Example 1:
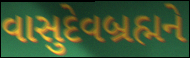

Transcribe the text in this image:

વાસુદેવબ્રહ્મને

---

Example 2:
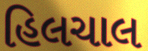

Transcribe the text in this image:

હિલચાલ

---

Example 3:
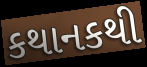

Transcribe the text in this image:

કથાનકથી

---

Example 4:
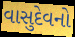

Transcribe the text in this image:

વાસુદેવનો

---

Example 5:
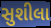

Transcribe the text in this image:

સુશીલા